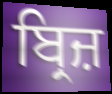
ਬ੍ਰਿਜ਼